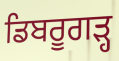
ਡਿਬਰੂਗੜ੍ਹ